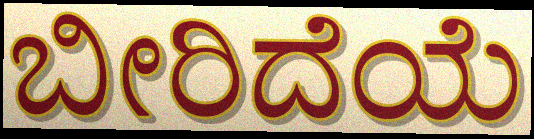
ಬೀರಿದೆಯೆ